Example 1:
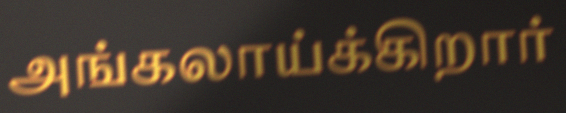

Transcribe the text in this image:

அங்கலாய்க்கிறார்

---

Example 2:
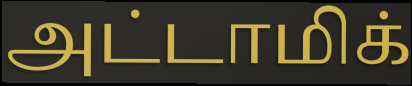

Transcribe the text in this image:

அட்டாமிக்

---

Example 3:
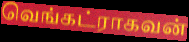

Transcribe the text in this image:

வெங்கட்ராகவன்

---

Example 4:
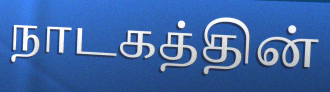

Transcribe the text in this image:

நாடகத்தின்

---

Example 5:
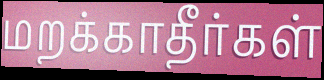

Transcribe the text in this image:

மறக்காதீர்கள்